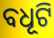
ବଧୂଟି